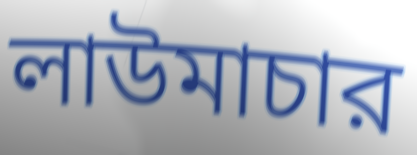
লাউমাচার